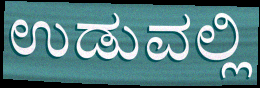
ಉಡುವಲ್ಲಿ